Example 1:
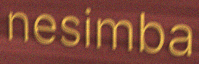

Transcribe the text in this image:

nesimba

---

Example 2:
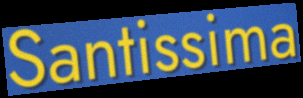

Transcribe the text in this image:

Santissima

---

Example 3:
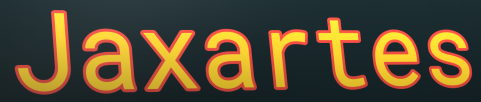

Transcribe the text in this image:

Jaxartes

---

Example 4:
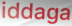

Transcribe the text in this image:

iddaga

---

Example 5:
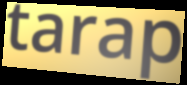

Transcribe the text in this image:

tarap